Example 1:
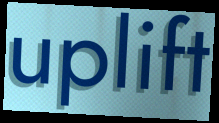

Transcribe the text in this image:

uplift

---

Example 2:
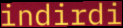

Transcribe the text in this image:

indirdi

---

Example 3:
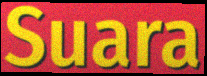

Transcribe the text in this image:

Suara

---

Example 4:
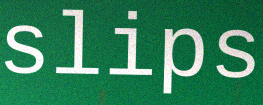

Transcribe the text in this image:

slips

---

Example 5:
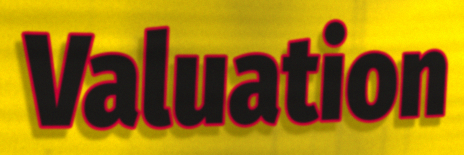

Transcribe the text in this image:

Valuation